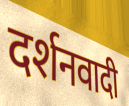
दर्शनवादी